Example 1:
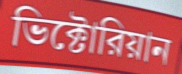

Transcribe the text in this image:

ভিক্টোরিয়ান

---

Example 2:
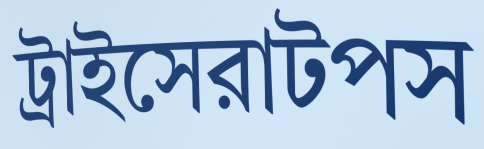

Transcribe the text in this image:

ট্রাইসেরাটপস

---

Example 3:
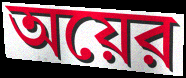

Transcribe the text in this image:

অয়ের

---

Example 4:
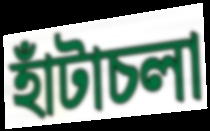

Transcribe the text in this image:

হাঁটাচলা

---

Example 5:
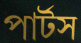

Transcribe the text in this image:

পার্টস